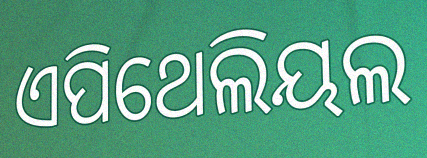
ଏପିଥେଲିୟଲ